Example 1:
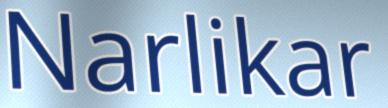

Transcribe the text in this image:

Narlikar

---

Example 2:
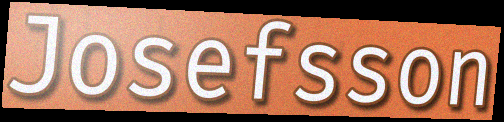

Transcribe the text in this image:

Josefsson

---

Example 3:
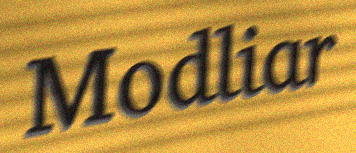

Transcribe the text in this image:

Modliar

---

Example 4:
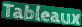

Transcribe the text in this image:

Tableaux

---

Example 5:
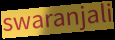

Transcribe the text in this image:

swaranjali